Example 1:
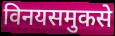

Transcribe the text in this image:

विनयसमुकसे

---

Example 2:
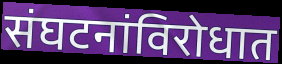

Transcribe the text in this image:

संघटनांविरोधात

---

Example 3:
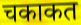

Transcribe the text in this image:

चकाकत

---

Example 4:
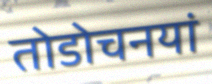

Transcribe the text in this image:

तोडोचनयां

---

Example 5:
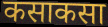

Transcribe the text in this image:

कसाकसा